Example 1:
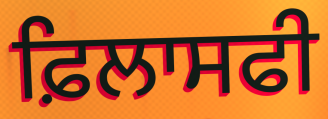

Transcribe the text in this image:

ਫ਼ਿਲਾਸਫੀ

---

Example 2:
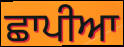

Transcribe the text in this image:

ਛਾਪੀਆ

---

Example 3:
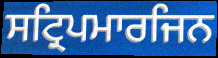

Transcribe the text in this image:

ਸਟ੍ਰਿਪਮਾਰਜਿਨ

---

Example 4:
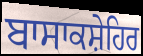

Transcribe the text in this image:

ਬਾਸਾਕਸ਼ੇਹਿਰ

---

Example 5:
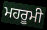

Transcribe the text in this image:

ਮਹਰੂਮੀ